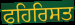
ਫਹਿਰਿਸਤ